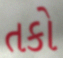
તકો